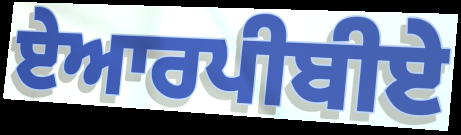
ਏਆਰਪੀਬੀਏ